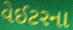
વેઈટરના